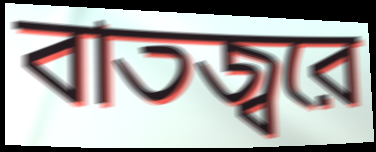
বাতজ্বরে